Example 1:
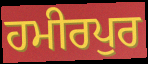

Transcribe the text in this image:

ਹਮੀਰਪੁਰ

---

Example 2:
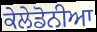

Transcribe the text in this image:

ਕੇਲੇਡੋਨੀਆ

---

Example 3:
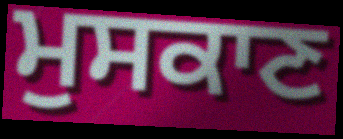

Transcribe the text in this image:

ਮੁਸਕਾਣ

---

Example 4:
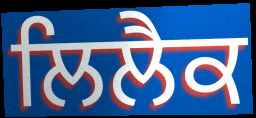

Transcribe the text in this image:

ਲਿਲੈਕ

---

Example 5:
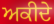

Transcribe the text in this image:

ਅਕੀਦੇ